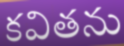
కవితను